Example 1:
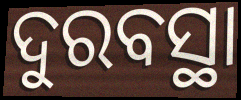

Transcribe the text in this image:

ଦୁରବସ୍ଥା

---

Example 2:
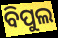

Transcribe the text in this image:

ବିପୁଲ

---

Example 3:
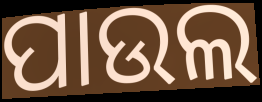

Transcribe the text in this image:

ପାଉଲ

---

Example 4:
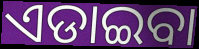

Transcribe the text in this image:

ଏଡାଇବା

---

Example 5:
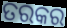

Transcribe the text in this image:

ତରକର